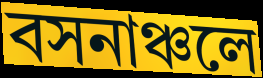
বসনাঞ্চলে